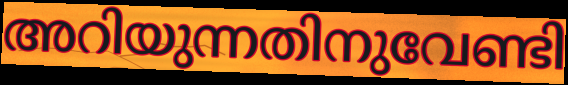
അറിയുന്നതിനുവേണ്ടി